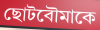
ছোটবৌমাকে